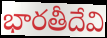
భారతీదేవి